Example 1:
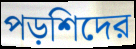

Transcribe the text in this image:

পড়শিদের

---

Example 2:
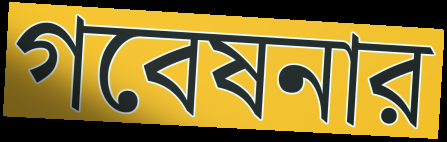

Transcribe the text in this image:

গবেষনার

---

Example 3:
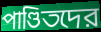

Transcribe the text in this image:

পাণ্ডিতদের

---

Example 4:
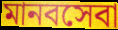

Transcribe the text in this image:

মানবসেবা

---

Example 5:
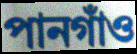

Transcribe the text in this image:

পানগাঁও